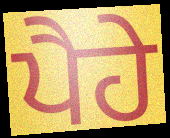
ਪੈਹੇ